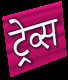
ट्रेव्स